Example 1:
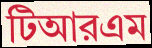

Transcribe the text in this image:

টিআরএম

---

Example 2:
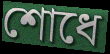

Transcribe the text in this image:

শোধে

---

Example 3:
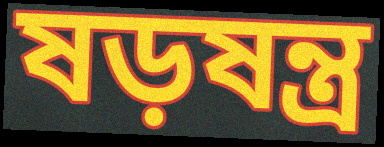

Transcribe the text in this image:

ষড়ষন্ত্র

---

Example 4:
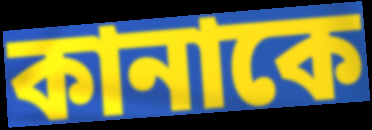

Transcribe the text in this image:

কানাকে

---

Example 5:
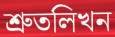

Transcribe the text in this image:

শ্রুতলিখন